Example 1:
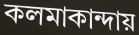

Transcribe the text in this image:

কলমাকান্দায়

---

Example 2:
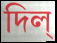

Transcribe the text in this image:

দিল্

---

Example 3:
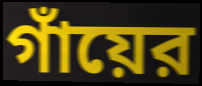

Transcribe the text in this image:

গাঁয়ের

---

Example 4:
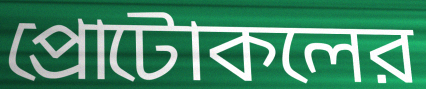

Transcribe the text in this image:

প্রোটোকলের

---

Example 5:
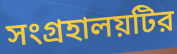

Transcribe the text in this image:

সংগ্রহালয়টির